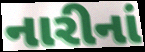
નારીનાં